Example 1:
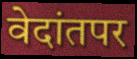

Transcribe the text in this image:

वेदांतपर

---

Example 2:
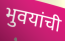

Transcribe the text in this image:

भुवयांची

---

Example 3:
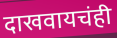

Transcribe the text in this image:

दाखवायचंही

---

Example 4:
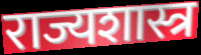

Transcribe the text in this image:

राज्यशास्त्र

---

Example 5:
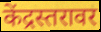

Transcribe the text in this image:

केंद्रस्तरावर